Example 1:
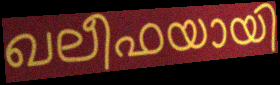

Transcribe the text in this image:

ഖലീഫയായി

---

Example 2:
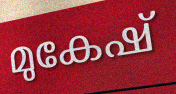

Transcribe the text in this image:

മുകേഷ്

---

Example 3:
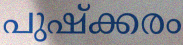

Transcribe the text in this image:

പുഷ്ക്കരം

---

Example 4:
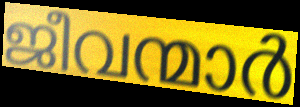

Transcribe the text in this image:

ജീവന്മാർ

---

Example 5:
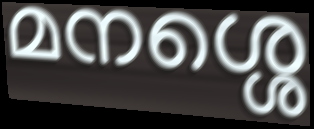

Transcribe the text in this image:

മനശ്ശെ